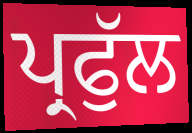
ਪ੍ਰਫੁੱਲ